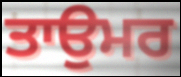
ਤਾਉਮਰ